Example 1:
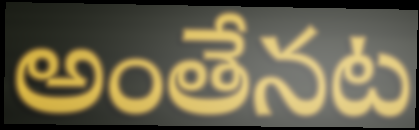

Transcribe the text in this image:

అంతేనట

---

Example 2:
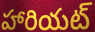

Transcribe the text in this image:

హారియట్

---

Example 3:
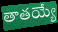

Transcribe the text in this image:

తాతయ్యే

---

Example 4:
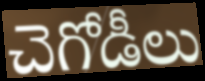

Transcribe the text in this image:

చెగోడీలు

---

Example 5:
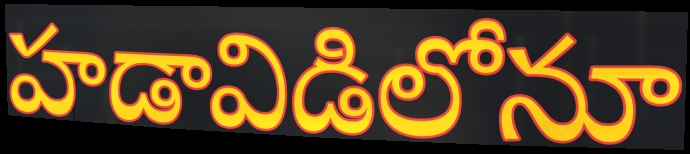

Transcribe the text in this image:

హడావిడిలోనూ